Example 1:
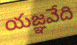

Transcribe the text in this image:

యజ్ఞవేది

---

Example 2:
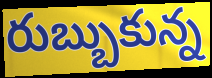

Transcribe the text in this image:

రుబ్బుకున్న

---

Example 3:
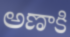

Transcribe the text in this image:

అణాకి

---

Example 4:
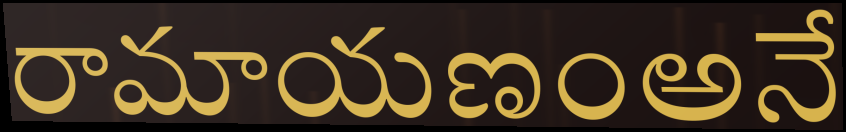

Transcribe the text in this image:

రామాయణంఅనే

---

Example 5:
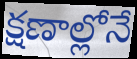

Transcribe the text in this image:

క్షణాల్లోనే